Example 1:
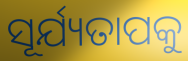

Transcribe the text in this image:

ସୂର୍ଯ୍ୟତାପକୁ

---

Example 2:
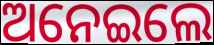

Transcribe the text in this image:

ଅନେଇଲେ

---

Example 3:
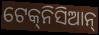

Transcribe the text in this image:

ଟେକ୍‌ନିସିଆନ୍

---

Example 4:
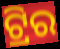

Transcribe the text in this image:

ଟ୍ରିର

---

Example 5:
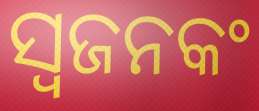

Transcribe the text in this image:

ସ୍ଵଜନକଂ